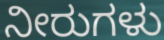
ನೀರುಗಳು